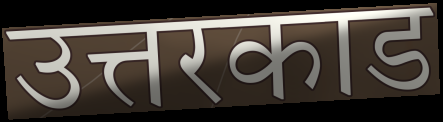
उत्तरकाड